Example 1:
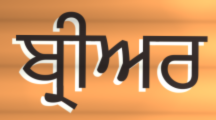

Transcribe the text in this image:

ਬ੍ਰੀਅਰ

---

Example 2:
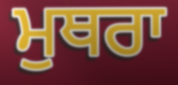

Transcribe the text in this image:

ਮੁਥਰਾ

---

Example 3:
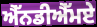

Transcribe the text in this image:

ਐੱਨਡੀਐੱਮਏ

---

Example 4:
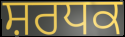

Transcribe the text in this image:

ਸ਼ਰਧਕ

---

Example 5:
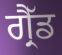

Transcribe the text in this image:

ਗ੍ਰੈੱਡ